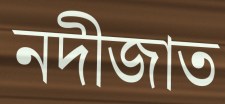
নদীজাত